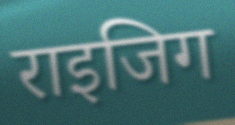
राइजिग